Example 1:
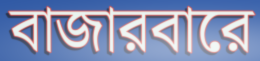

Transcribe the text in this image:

বাজারবারে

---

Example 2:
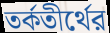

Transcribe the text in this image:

তর্কতীর্থের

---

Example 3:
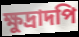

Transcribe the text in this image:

ক্ষুদ্রাদপি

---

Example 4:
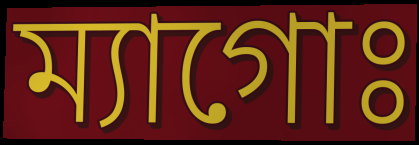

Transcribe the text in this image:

ম্যাগোঃ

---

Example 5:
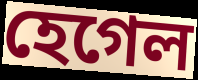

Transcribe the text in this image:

হেগেল